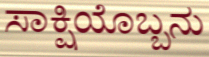
ಸಾಕ್ಷಿಯೊಬ್ಬನು